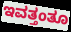
ಇವತ್ತಂತೂ